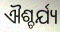
ଐଶ୍ଚର୍ଯ୍ୟ